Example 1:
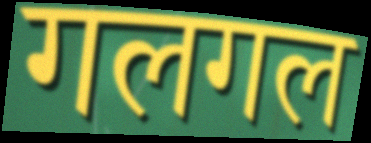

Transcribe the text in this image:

गलगल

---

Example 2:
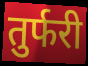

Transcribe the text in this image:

तुर्फरी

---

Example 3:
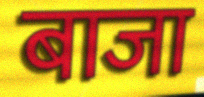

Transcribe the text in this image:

बाजा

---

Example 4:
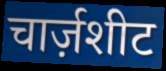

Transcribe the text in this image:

चार्ज़शीट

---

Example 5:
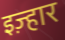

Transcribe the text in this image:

इज़्हार